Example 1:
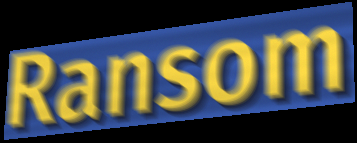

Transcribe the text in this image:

Ransom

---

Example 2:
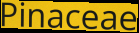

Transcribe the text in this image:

Pinaceae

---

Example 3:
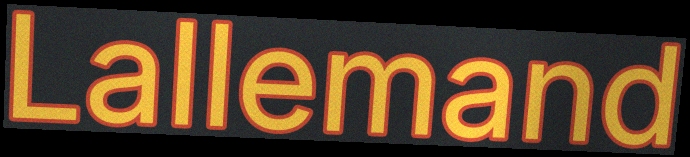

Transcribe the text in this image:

Lallemand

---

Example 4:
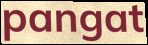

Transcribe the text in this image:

pangat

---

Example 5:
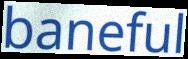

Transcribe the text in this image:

baneful